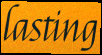
lasting